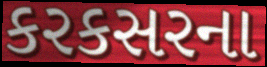
કરકસરના